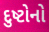
દુષ્ટોનો